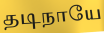
தடிநாயே